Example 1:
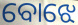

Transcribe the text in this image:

ବୋଝେ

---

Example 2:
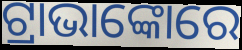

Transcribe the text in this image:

ଟ୍ରାଭାଙ୍କୋରେ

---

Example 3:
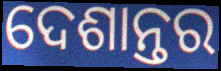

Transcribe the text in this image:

ଦେଶାନ୍ତର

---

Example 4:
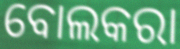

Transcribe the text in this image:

ବୋଲକରା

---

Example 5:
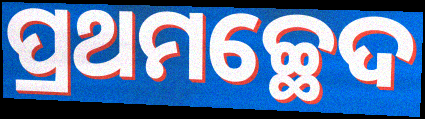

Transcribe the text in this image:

ପ୍ରଥମଚ୍ଛେଦ